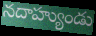
నదాహ్యుండు